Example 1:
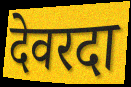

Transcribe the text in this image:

देवरदा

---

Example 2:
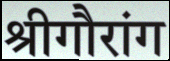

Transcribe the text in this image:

श्रीगौरांग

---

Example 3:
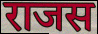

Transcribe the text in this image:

राजस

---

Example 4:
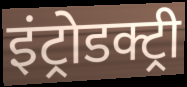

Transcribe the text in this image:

इंट्रोडक्ट्री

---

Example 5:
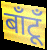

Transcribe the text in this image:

बाँटूँ